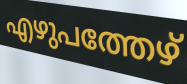
എഴുപത്തേഴ്